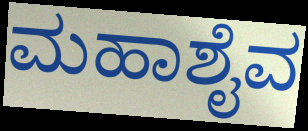
ಮಹಾಶೈವ